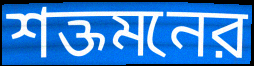
শক্তমনের